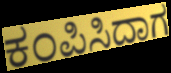
ಕಂಪಿಸಿದಾಗ